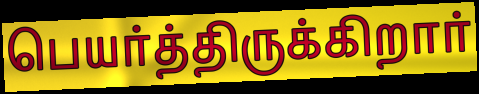
பெயர்த்திருக்கிறார்